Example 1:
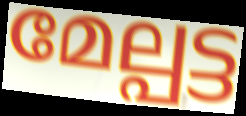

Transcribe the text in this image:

മേല്പട്ട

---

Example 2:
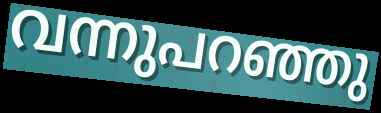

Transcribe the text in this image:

വന്നുപറഞ്ഞു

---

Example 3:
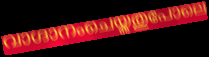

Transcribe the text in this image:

വാഗ്ദാനംചെയ്തതുപോലെ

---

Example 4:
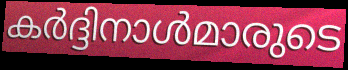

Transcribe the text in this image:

കർദ്ദിനാൾമാരുടെ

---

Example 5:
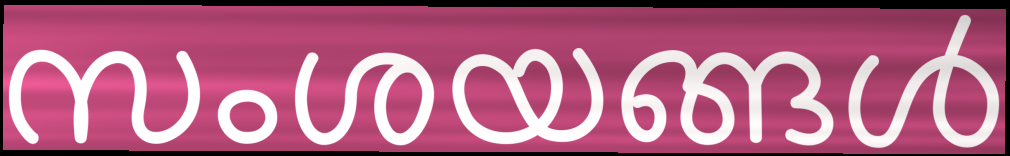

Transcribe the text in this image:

സംശയങ്ങൾ